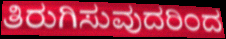
ತಿರುಗಿಸುವುದರಿಂದ